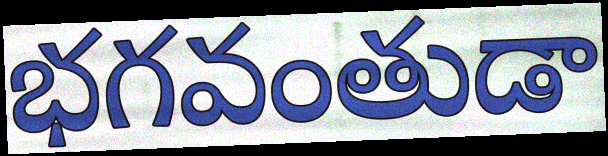
భగవంతుడా